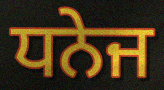
ਧਨੇਜ